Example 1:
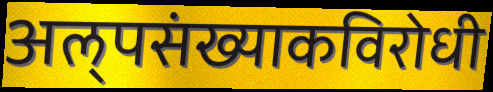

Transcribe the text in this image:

अल्पसंख्याकविरोधी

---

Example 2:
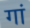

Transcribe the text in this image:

गां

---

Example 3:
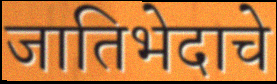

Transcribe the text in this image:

जातिभेदाचे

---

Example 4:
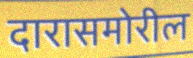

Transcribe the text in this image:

दारासमोरील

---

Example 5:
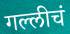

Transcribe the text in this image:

गल्लीचं